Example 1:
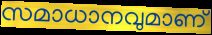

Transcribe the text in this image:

സമാധാനവുമാണ്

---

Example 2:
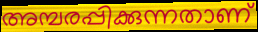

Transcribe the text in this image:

അമ്പരപ്പിക്കുന്നതാണ്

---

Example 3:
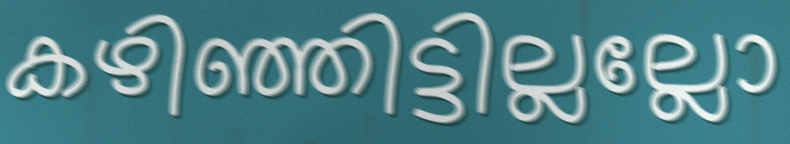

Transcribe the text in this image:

കഴിഞ്ഞിട്ടില്ലല്ലോ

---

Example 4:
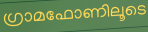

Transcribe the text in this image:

ഗ്രാമഫോണിലൂടെ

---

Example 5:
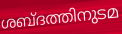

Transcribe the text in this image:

ശബ്ദത്തിനുടമ